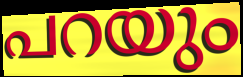
പറയും